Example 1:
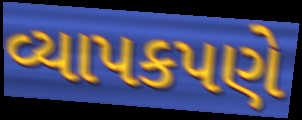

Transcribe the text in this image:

વ્યાપકપણે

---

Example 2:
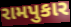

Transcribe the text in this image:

રામપુકાર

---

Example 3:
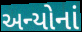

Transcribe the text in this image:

અન્યોનાં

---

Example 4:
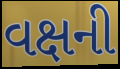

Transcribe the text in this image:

વક્ષની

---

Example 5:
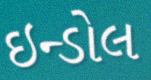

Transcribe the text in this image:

ઇન્ડોલ